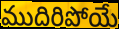
ముదిరిపోయే